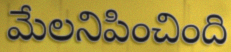
మేలనిపించింది